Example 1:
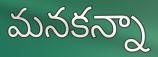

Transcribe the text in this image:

మనకన్నా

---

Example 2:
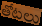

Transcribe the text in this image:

తోటలు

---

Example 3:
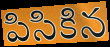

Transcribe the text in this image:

పిసికిన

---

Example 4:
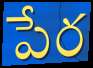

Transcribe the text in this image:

పేర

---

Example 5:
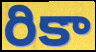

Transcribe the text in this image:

రికా